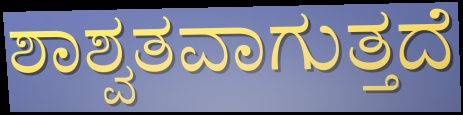
ಶಾಶ್ವತವಾಗುತ್ತದೆ